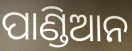
ପାଣ୍ଡିଆନ